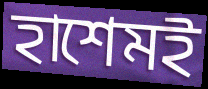
হাশেমই